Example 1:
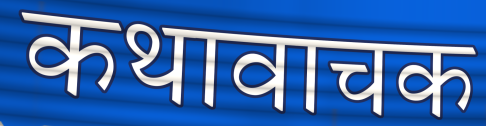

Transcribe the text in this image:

कथावाचक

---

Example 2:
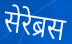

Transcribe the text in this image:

सेरेब्रस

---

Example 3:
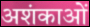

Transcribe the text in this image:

अशंकाओं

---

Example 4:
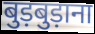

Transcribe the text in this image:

बुड़बुड़ाना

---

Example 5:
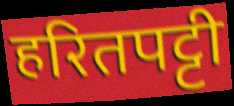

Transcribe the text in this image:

हरितपट्टी